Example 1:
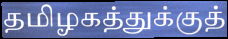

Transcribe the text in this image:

தமிழகத்துக்குத்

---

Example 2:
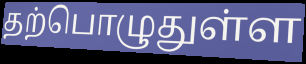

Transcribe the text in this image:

தற்பொழுதுள்ள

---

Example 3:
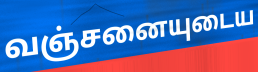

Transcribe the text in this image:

வஞ்சனையுடைய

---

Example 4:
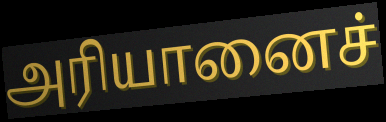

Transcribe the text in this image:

அரியானைச்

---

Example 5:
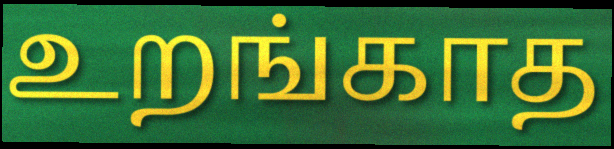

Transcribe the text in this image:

உறங்காத